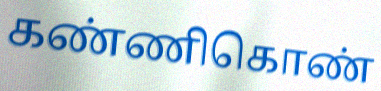
கண்ணிகொண்